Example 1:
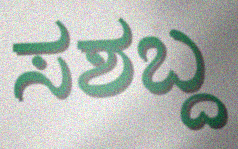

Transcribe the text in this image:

ಸಶಬ್ದ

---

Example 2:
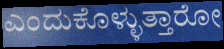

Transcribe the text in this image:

ಎಂದುಕೊಳ್ಳುತ್ತಾರೋ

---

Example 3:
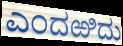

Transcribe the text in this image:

ಎಂದಱಿದು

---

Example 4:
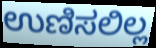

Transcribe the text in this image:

ಉಣಿಸಲಿಲ್ಲ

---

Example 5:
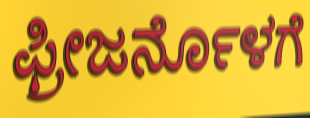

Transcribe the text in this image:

ಫ್ರೀಜರ್ನೊಳಗೆ